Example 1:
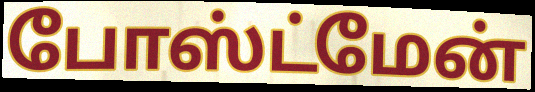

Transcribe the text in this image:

போஸ்ட்மேன்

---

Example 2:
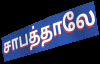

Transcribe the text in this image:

சாபத்தாலே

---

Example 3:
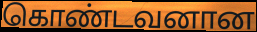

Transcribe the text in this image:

கொண்டவனான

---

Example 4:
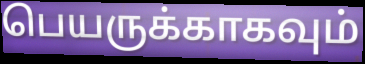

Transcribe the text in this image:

பெயருக்காகவும்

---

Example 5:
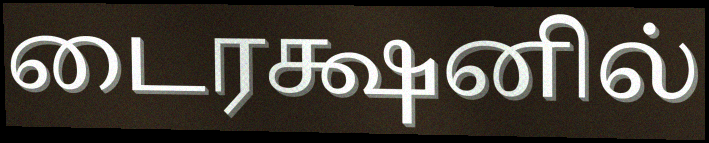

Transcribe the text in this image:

டைரக்ஷனில்